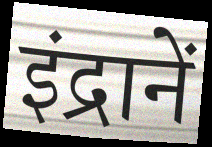
इंद्रानें